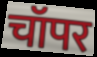
चॉपर